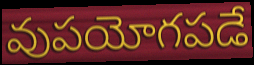
వుపయోగపడే